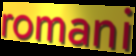
romani